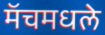
मॅचमधले